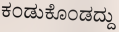
ಕಂಡುಕೊಂಡದ್ದು